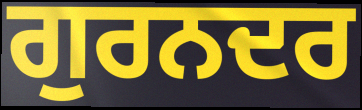
ਗੁਰਨਦਰ